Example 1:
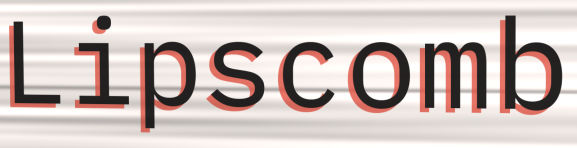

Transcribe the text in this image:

Lipscomb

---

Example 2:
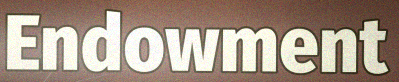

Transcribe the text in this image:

Endowment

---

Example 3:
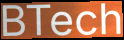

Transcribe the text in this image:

BTech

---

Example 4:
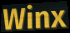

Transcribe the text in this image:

Winx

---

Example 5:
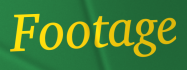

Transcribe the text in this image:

Footage